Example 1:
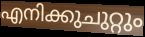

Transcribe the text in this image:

എനിക്കുചുറ്റും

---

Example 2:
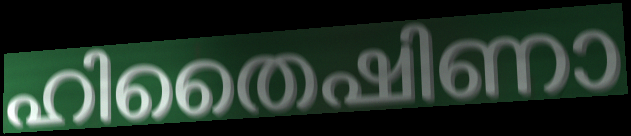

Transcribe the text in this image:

ഹിതൈഷിണാ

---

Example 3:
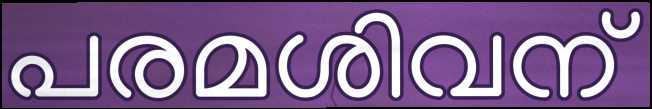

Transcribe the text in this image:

പരമശിവന്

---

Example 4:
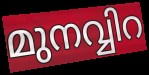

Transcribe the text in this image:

മുനവ്വിറ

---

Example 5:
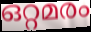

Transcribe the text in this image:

ഒറ്റമരം